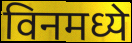
विनमध्ये